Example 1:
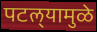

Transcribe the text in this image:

पटल्यामुळे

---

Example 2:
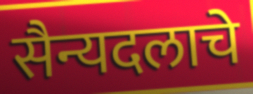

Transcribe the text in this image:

सैन्यदलाचे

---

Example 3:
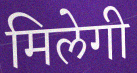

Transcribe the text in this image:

मिलेगी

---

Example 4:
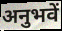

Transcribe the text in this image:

अनुभवें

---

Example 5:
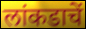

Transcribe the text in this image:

लांकडाचें